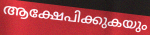
ആക്ഷേപിക്കുകയും